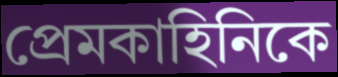
প্রেমকাহিনিকে